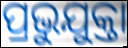
ପ୍ରଭୁଯୁକ୍ତା